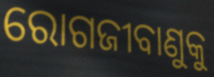
ରୋଗଜୀବାଣୁକୁ